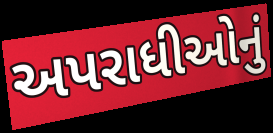
અપરાધીઓનું